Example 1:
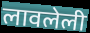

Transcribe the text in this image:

लावलेली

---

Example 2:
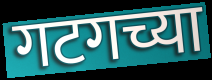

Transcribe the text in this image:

गटगच्या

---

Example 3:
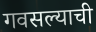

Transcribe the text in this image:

गवसल्याची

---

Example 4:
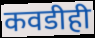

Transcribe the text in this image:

कवडीही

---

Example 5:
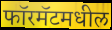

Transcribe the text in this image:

फॉरमॅटमधील